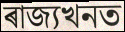
ৰাজ্যখনত